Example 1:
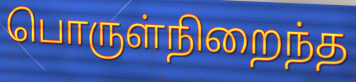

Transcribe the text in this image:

பொருள்நிறைந்த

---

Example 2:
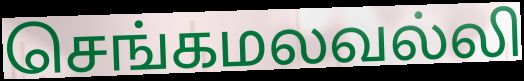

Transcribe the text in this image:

செங்கமலவல்லி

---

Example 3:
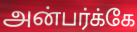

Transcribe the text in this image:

அன்பர்க்கே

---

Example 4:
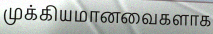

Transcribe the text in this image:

முக்கியமானவைகளாக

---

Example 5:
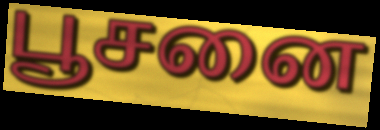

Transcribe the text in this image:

பூசனை